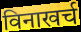
विनाखर्च